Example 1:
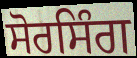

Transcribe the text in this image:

ਸੋਰਸਿੰਗ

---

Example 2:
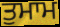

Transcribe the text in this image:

ਤੁਮਾਮ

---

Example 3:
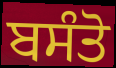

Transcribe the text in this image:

ਬਸੰਤੋ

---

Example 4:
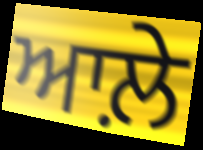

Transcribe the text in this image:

ਆਲ਼ੇ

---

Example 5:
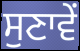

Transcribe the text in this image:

ਸੁਣਾਵੇਂ